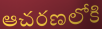
ఆచరణలోకి